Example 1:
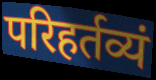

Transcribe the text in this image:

परिहर्तव्यं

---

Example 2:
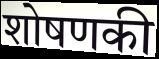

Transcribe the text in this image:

शोषणकी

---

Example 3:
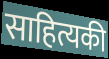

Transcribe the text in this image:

साहित्यकी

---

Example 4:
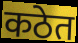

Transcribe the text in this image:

कठेत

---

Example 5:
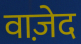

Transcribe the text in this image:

वाज़ेद